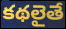
కథలైతే